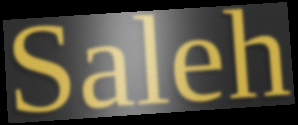
Saleh